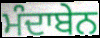
ਮੰਦਾਬੇਨ